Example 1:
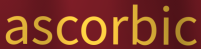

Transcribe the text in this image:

ascorbic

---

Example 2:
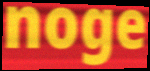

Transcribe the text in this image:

noge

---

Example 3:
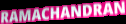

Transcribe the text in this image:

RAMACHANDRAN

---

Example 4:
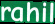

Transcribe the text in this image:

rahil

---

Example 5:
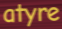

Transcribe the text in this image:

atyre